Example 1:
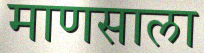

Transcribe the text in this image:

माणसाला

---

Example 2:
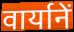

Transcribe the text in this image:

वार्यानें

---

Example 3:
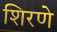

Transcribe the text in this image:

शिरणे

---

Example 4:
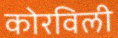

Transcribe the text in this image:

कोरविली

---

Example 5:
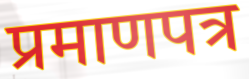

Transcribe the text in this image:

प्रमाणपत्र